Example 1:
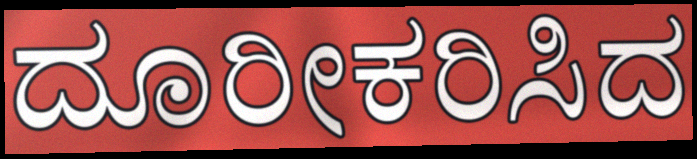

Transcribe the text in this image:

ದೂರೀಕರಿಸಿದ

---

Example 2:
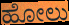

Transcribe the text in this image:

ಹೋಲು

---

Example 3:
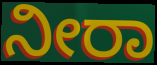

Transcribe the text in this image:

ನೀರಾ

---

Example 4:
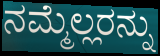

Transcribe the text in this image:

ನಮ್ಮೆಲ್ಲರನ್ನು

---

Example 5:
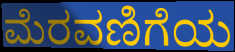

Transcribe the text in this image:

ಮೆರವಣಿಗೆಯ